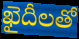
ఖైదీలతో